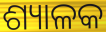
ଶ୍ୟାଳକ